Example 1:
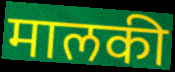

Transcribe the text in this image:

मालकी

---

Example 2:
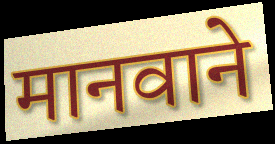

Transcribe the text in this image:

मानवाने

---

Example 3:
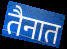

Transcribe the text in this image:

तैनात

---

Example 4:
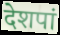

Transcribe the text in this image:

देशपां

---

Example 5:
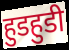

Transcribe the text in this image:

हुडहुडी